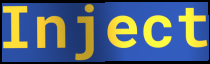
Inject